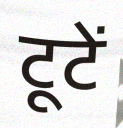
टूटें